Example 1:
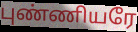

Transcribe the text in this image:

புண்ணியரே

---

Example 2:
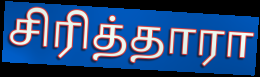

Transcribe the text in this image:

சிரித்தாரா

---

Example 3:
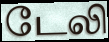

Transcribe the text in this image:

டேலி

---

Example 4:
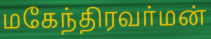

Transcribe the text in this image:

மகேந்திரவர்மன்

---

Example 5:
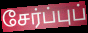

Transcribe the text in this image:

சேர்ப்புப்